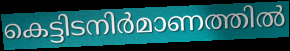
കെട്ടിടനിർമാണത്തിൽ